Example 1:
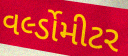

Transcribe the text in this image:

વર્લ્ડોમીટર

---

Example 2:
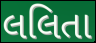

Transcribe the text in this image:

લલિતા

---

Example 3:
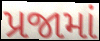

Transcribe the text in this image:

પ્રજામાં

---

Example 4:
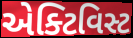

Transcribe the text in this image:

એક્ટિવિસ્ટ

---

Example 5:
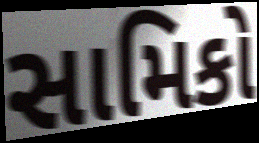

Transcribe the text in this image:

સામિકો